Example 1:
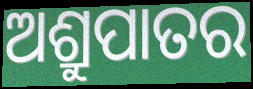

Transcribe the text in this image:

ଅଶ୍ରୁପାତର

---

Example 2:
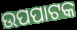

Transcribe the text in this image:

ଉପପାଟକ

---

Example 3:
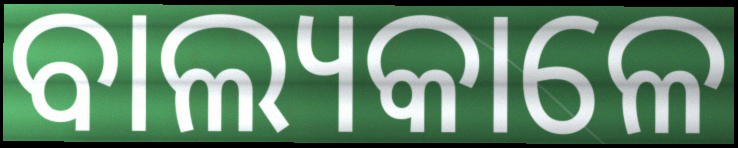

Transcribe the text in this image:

ବାଲ୍ୟକାଳେ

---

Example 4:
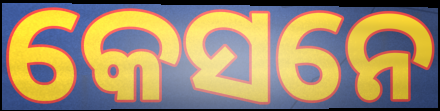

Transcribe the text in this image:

କେସନେ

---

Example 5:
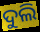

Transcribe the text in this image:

ଦୁଲି